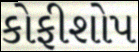
કોફીશોપ